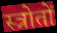
स्त्रोतों